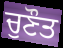
ਚੁਣੌਤ